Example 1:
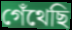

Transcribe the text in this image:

গেঁথেছি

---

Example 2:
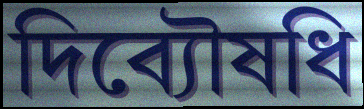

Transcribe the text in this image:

দিব্যৌষধি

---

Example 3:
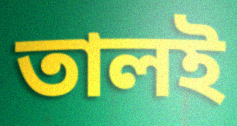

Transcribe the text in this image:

তালই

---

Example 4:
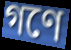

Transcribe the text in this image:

গণে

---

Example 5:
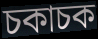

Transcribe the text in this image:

চকাচক